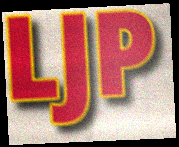
LJP